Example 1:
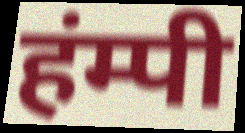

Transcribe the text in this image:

हंम्पी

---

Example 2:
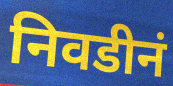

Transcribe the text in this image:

निवडीनं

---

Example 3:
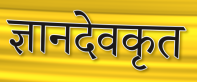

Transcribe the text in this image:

ज्ञानदेवकृत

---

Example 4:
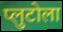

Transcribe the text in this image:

प्लुटोला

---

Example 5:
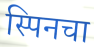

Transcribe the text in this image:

स्पिनचा